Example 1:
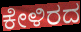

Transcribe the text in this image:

ಕೇಳಿರದ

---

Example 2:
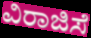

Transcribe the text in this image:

ವಿರಾಜಿಸೆ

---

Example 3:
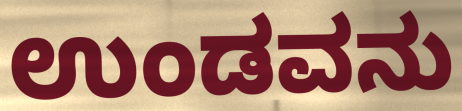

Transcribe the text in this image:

ಉಂಡವನು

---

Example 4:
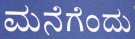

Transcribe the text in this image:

ಮನೆಗೆಂದು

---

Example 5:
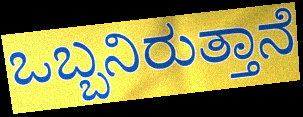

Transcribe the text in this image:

ಒಬ್ಬನಿರುತ್ತಾನೆ